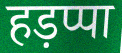
हड़प्पा